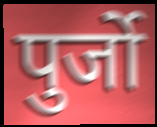
पुर्जो